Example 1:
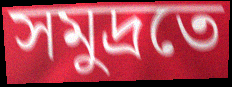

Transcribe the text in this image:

সমুদ্ৰতে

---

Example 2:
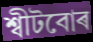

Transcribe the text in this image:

শ্বীটবোৰ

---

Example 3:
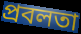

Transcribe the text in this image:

প্ৰবলতা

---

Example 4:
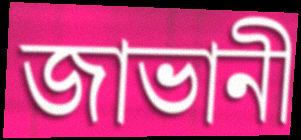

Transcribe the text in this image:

জাভানী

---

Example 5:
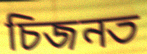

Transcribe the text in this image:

চিজনত